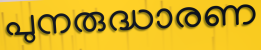
പുനരുദ്ധാരണ